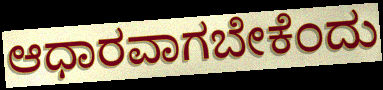
ಆಧಾರವಾಗಬೇಕೆಂದು